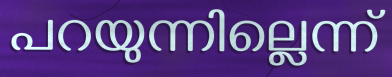
പറയുന്നില്ലെന്ന്